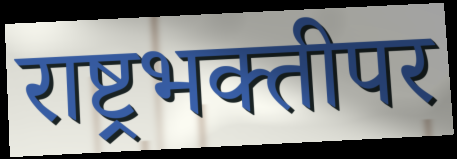
राष्ट्रभक्तीपर